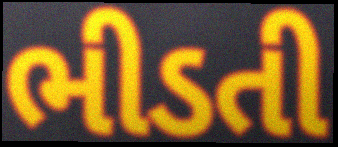
ભીડતી